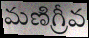
మణిగ్రీవ